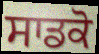
ਸਾਡਕੋ